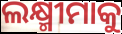
ଲକ୍ଷ୍ମୀମାକୁ